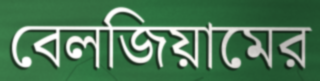
বেলজিয়ামের